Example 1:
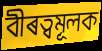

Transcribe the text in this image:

বীৰত্বমূলক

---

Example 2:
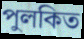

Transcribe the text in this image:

পুলকিত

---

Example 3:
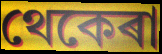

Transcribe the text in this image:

থেকেৰা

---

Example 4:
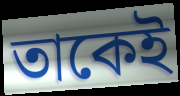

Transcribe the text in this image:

তাকেই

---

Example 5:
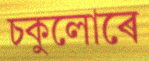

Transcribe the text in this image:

চকুলোৰে